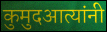
कुमुदआत्यांनी